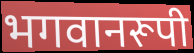
भगवानरूपी